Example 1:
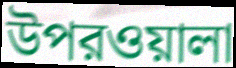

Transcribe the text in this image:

উপরওয়ালা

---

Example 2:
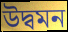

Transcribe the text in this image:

উদ্বমন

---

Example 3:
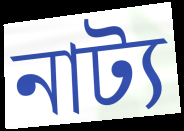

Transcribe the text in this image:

নাট্য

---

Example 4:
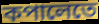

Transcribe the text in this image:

কপালেতে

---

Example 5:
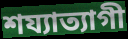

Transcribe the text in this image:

শয্যাত্যাগী